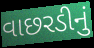
વાછરડીનું